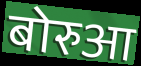
बोरुआ